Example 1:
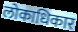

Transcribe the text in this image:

लोकाधिकार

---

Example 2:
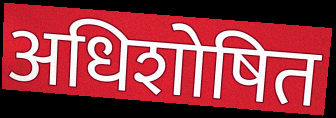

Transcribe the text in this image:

अधिशोषित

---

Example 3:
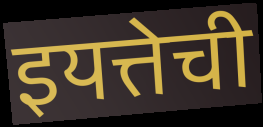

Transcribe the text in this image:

इयत्तेची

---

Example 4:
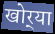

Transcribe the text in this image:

खोर्या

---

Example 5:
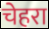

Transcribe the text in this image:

चेहरा